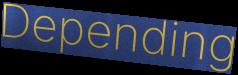
Depending